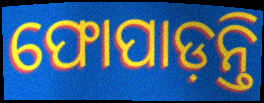
ଫୋପାଡ଼ନ୍ତି